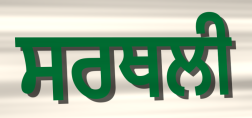
ਸਰਥਲੀ